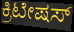
ಕ್ರಿಟೇಷಸ್